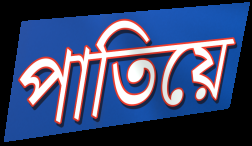
পাতিয়ে